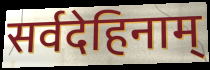
सर्वदेहिनाम्